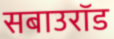
सबाउरॉड